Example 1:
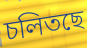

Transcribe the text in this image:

চলিতছে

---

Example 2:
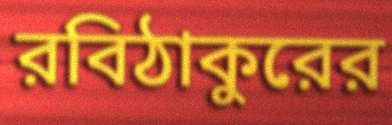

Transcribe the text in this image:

রবিঠাকুরের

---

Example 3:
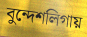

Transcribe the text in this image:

বুন্দেশলিগায়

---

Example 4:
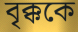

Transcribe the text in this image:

বৃক্ককে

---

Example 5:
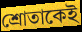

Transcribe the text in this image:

শ্রোতাকেই